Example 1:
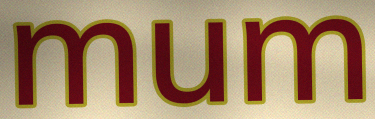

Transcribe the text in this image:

mum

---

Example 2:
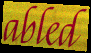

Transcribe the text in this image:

abled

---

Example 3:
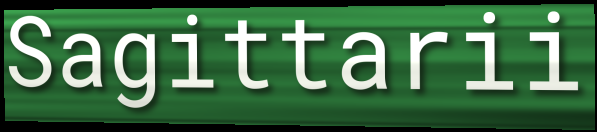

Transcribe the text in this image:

Sagittarii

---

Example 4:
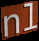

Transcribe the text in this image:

nl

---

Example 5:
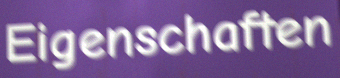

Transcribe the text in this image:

Eigenschaften